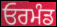
ਓਰਮੰਡ